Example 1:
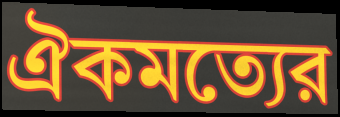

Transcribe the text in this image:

ঐকমত্যের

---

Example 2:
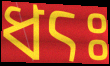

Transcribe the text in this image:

ধৎঃ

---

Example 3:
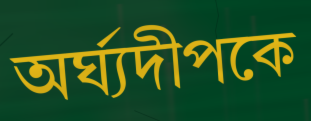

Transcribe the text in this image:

অর্ঘ্যদীপকে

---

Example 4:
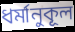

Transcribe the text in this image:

ধর্মানুকূল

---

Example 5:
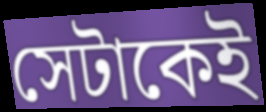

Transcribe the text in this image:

সেটাকেই